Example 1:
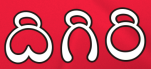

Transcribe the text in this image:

దిగిరి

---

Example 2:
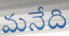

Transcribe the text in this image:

మనేది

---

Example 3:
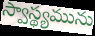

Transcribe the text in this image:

స్వాస్థ్యమును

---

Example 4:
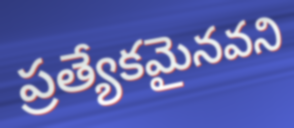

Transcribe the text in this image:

ప్రత్యేకమైనవని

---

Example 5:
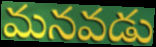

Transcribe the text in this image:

మనవడు